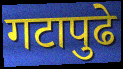
गटापुढे